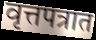
वृत्तपत्रात